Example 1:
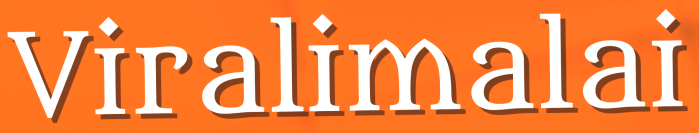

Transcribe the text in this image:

Viralimalai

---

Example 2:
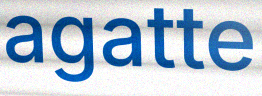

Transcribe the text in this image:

agatte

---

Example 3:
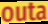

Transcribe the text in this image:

outa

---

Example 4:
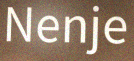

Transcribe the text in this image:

Nenje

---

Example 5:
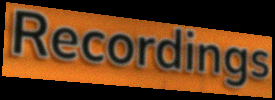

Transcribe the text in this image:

Recordings